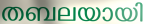
തബലയായി